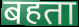
बहता